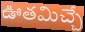
ఊతమిచ్చే